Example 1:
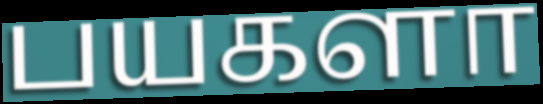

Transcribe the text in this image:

பயகளா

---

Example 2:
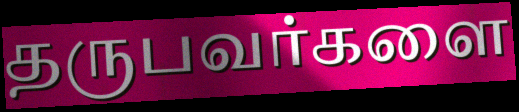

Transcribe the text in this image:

தருபவர்களை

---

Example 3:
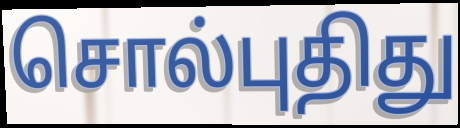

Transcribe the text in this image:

சொல்புதிது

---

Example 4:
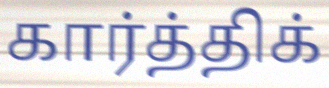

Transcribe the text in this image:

கார்த்திக்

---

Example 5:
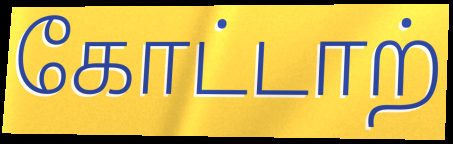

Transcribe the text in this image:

கோட்டாற்